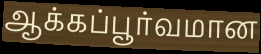
ஆக்கப்பூர்வமான